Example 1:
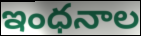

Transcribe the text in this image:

ఇంధనాల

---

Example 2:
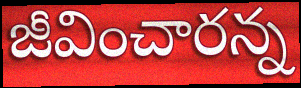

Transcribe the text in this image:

జీవించారన్న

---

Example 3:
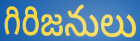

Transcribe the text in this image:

గిరిజనులు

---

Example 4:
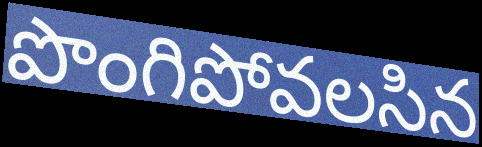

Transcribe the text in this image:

పొంగిపోవలసిన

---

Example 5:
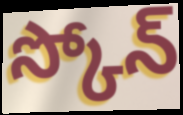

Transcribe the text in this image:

స్కోన్